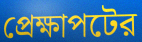
প্রেক্ষাপটের